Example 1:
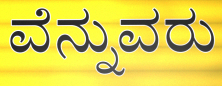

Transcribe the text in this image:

ವೆನ್ನುವರು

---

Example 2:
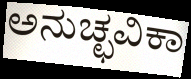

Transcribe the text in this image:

ಅನುಚ್ಛವಿಕಾ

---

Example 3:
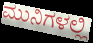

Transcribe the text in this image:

ಮುನಿಗಳಲ್ಲಿ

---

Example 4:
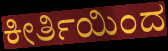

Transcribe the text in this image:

ಕೀರ್ತಿಯಿಂದ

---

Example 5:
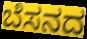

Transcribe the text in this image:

ಬೆಸನದ